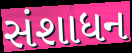
સંશાધન